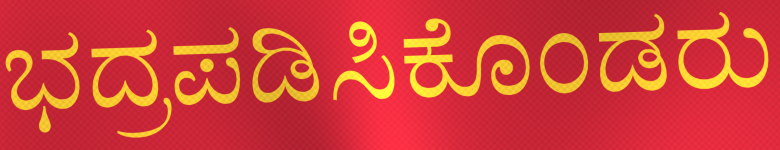
ಭದ್ರಪಡಿಸಿಕೊಂಡರು